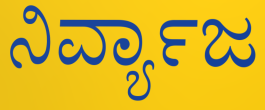
ನಿರ್ವ್ಯಾಜ